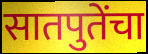
सातपुतेंचा